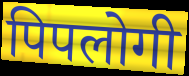
पिपलोगी